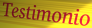
Testimonio